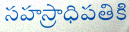
సహస్రాధిపతికి